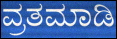
ವ್ರತಮಾಡಿ